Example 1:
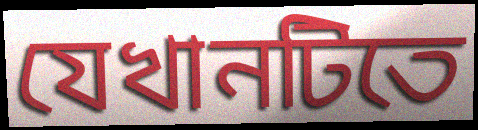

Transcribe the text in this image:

যেখানটিতে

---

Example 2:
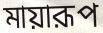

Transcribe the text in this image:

মায়ারূপ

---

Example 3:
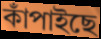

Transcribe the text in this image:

কাঁপাইছে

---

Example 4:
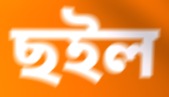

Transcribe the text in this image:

ছইল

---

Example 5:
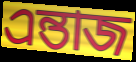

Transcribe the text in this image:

এন্তাজ